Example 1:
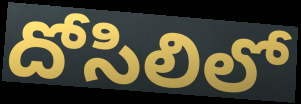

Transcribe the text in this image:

దోసిలిలో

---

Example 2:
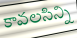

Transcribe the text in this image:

కావలసిన్ని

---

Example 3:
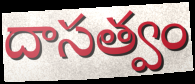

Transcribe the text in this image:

దాసత్వం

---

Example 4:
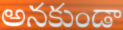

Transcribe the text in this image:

అనకుండా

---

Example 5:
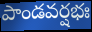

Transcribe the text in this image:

పాండవర్షభః